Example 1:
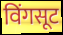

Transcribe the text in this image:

विंगसूट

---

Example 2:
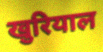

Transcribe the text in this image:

खुरियाल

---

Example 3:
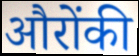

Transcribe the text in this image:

औरोंकी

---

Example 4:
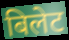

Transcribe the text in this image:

बिलेट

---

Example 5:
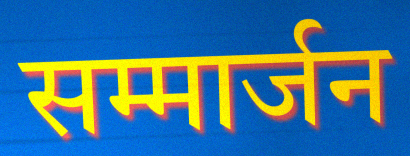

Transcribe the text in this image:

सम्मार्जन